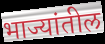
भाज्यांतील